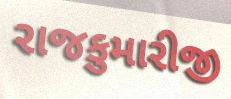
રાજકુમારીજી